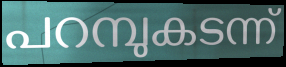
പറമ്പുകടന്ന്